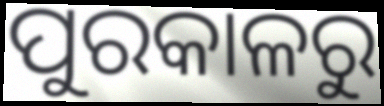
ପୁରକାଳରୁ